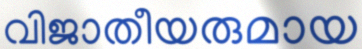
വിജാതീയരുമായ